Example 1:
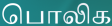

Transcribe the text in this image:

பொலிக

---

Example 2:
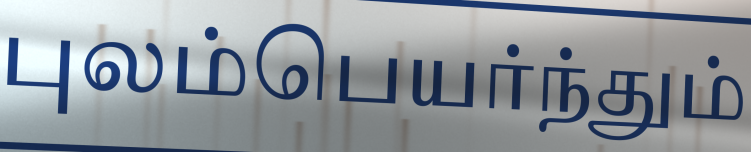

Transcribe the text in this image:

புலம்பெயர்ந்தும்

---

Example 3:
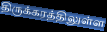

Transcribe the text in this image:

திருக்கரத்திலுள்ள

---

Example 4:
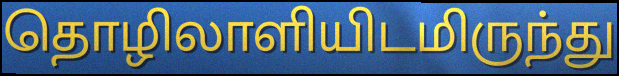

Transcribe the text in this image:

தொழிலாளியிடமிருந்து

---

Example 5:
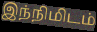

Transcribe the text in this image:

இந்நிமிடம்